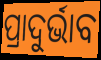
ପ୍ରାଦୁର୍ଭାବ